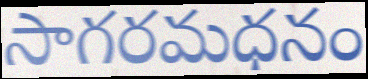
సాగరమధనం